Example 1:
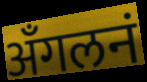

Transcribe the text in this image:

अँगलनं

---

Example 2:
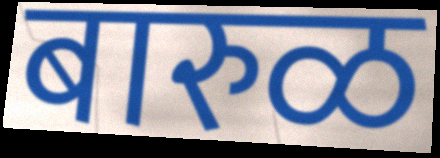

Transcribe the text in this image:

बारुळ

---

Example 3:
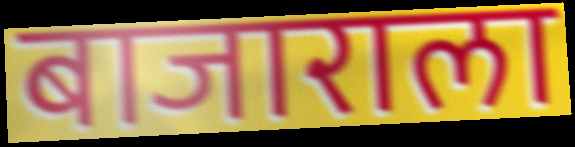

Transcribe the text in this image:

बाजाराला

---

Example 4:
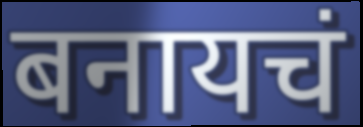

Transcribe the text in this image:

बनायचं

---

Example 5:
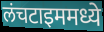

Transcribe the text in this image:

लंचटाइममध्ये